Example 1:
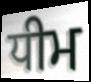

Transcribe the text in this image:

ਧੀਮ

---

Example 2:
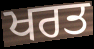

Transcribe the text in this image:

ਖਰਤ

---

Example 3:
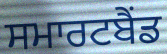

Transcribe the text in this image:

ਸਮਾਰਟਬੈਂਡ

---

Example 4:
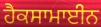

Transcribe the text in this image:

ਹੈਕਸਾਮਾਈਨ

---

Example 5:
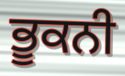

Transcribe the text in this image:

ਭੂਕਨੀ